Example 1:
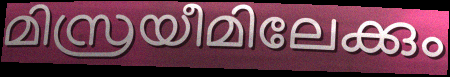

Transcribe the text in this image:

മിസ്രയീമിലേക്കും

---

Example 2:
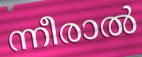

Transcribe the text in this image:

ന്നീരാൽ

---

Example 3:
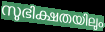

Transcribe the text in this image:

സുഭിക്ഷതയിലും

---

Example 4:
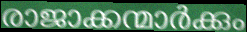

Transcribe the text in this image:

രാജാക്കന്മാർക്കും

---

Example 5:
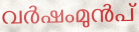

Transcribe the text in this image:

വർഷംമുൻപ്